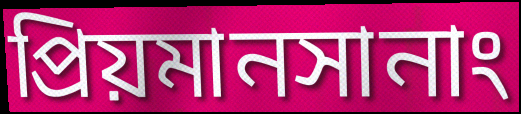
প্রিয়মানসানাং